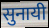
सुनायी